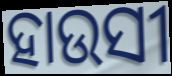
ହାଉସୀ